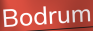
Bodrum